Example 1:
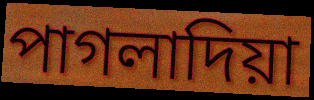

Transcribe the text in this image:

পাগলাদিয়া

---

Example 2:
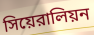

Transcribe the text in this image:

সিয়েরালিয়ন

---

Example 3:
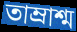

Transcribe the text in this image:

তাম্রাশ্ম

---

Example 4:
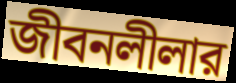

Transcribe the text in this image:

জীবনলীলার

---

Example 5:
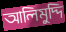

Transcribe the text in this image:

আলিমুদ্দি